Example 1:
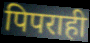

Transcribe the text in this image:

पिपराही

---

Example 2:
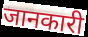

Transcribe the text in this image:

जानकारी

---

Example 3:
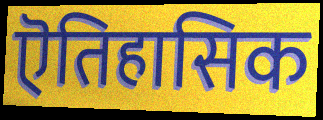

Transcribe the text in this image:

ऎतिहासिक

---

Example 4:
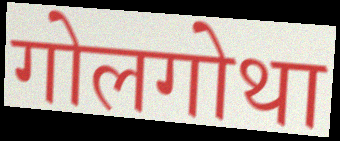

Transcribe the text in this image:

गोलगोथा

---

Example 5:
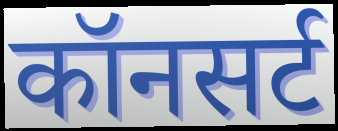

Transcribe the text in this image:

कॉनसर्ट